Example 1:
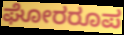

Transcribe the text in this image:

ಘೋರರೂಪ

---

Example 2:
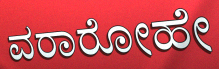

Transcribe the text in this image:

ವರಾರೋಹೇ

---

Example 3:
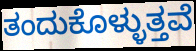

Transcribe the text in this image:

ತಂದುಕೊಳ್ಳುತ್ತವೆ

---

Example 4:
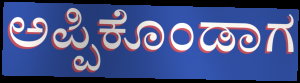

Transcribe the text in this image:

ಅಪ್ಪಿಕೊಂಡಾಗ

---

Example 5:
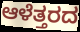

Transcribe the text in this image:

ಆಳೆತ್ತರದ